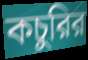
কচুরির